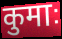
कुमाः